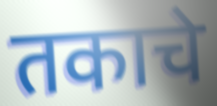
तकाचे